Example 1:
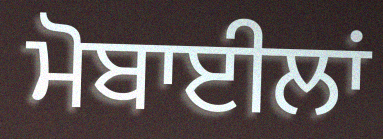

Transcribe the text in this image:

ਮੋਬਾਈਲਾਂ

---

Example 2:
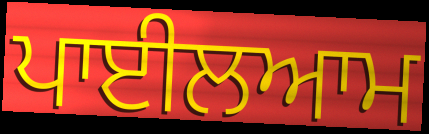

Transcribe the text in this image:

ਪਾਈਲਆਮ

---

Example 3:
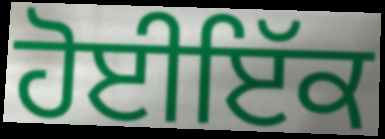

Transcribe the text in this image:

ਹੋਈਇੱਕ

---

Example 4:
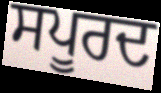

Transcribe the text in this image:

ਸਪੂਰਦ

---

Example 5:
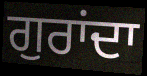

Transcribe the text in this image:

ਗੁਰਾਂਦਾ